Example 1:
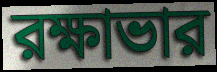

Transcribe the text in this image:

রক্ষাভার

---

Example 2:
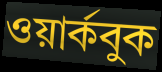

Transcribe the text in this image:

ওয়ার্কবুক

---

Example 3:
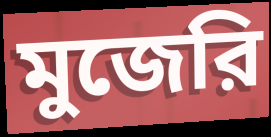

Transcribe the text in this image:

মুজেরি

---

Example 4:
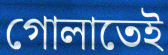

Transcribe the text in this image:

গোলাতেই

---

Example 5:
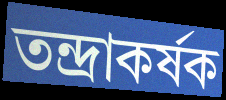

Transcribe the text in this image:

তন্দ্রাকর্ষক